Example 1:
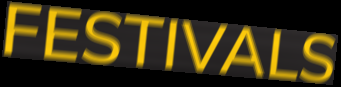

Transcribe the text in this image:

FESTIVALS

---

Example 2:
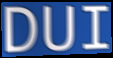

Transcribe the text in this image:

DUI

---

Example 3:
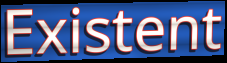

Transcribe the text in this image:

Existent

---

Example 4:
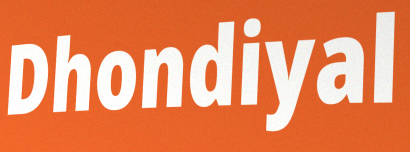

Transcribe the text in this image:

Dhondiyal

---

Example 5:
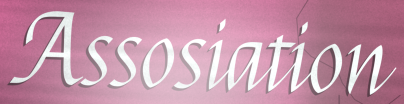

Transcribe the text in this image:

Assosiation